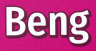
Beng